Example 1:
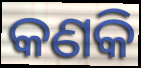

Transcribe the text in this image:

କଣକି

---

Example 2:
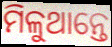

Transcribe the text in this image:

ମିଳୁଥାନ୍ତେ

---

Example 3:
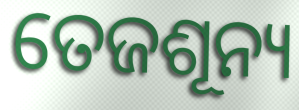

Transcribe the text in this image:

ତେଜଶୂନ୍ୟ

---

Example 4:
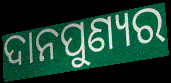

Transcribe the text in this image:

ଦାନପୁଣ୍ୟର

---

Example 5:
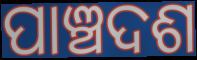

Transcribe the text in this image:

ପାଞ୍ଚଦଶ